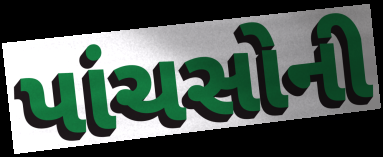
પાંચસોની